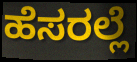
ಹೆಸರಲ್ಲೆ